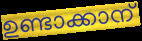
ഉണ്ടാക്കാന്